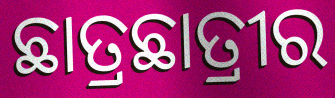
ଛାତ୍ରଛାତ୍ରୀର